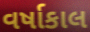
વર્ષાકાલ